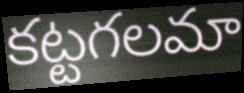
కట్టగలమా